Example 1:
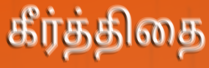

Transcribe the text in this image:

கீர்த்திதை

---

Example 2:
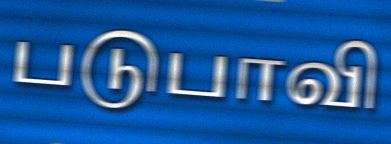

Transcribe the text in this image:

படுபாவி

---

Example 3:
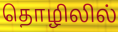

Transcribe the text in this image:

தொழிலில்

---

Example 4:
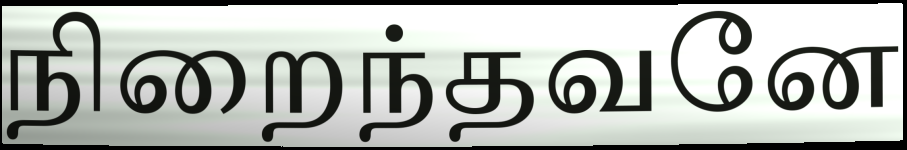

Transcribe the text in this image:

நிறைந்தவனே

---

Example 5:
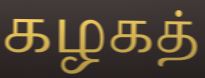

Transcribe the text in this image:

கழகத்